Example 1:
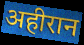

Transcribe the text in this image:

अहीरान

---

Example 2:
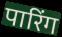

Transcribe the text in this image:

पारिंग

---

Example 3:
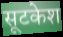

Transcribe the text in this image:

सूटकेश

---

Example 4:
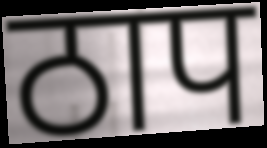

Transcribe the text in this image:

ठाप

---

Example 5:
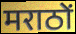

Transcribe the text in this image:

मराठों